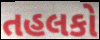
તહલકો